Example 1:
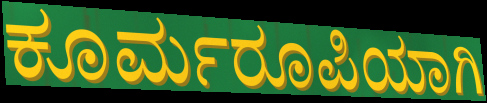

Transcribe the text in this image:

ಕೂರ್ಮರೂಪಿಯಾಗಿ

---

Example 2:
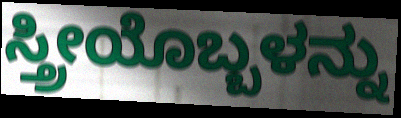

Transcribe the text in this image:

ಸ್ತ್ರೀಯೊಬ್ಬಳನ್ನು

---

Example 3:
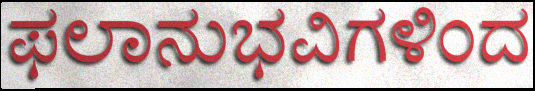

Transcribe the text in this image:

ಫಲಾನುಭವಿಗಳಿಂದ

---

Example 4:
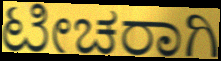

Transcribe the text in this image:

ಟೀಚರಾಗಿ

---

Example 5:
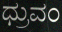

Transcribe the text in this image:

ಧ್ರುವಂ